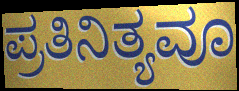
ಪ್ರತಿನಿತ್ಯವೂ